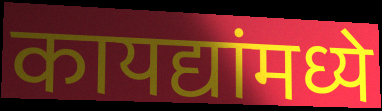
कायद्यांमध्ये